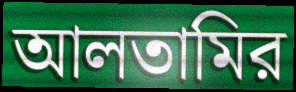
আলতামির